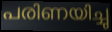
പരിണയിച്ചു